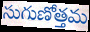
సుగుణోత్తమ